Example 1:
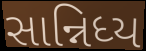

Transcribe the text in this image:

સાન્નિધ્ય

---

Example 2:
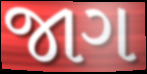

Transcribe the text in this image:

જાગ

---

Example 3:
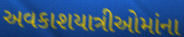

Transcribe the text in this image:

અવકાશયાત્રીઓમાંના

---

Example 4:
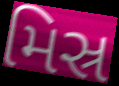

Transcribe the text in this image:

મિસ્ર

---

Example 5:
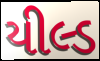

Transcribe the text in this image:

યીલ્ડ